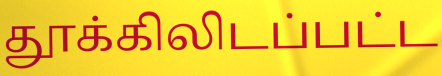
தூக்கிலிடப்பட்ட